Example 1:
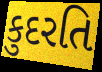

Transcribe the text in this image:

કુદરતિ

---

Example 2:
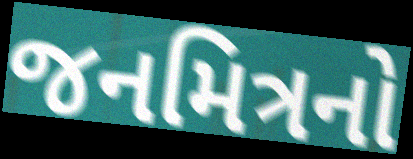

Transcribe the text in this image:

જનમિત્રનો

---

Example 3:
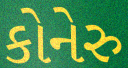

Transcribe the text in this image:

કોનેરુ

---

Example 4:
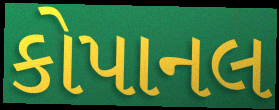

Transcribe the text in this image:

કોપાનલ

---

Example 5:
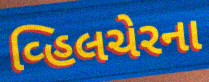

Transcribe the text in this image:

વ્હિલચેરના